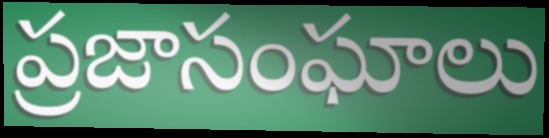
ప్రజాసంఘాలు